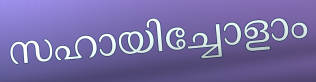
സഹായിച്ചോളാം